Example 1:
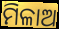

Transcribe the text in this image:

ମିଳାଅ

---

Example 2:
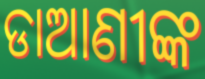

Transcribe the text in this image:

ଡାଆଣୀଙ୍କ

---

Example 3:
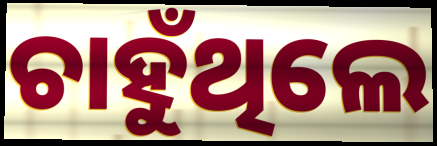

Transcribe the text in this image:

ଚାହୁଁଥିଲେ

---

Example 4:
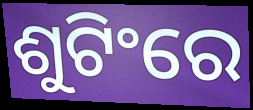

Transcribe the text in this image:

ଶୁଟିଂରେ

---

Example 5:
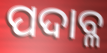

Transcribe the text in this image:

ପଦାବ୍ଳ